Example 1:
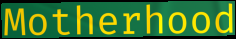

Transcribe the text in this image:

Motherhood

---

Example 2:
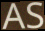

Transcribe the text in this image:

AS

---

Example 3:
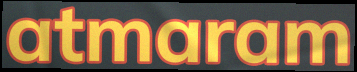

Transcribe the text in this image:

atmaram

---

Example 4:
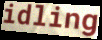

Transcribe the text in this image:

idling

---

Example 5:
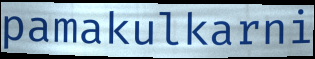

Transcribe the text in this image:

pamakulkarni